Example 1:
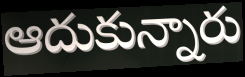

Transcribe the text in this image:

ఆదుకున్నారు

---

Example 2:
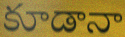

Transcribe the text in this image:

కూడానా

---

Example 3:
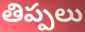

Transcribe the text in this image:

తిప్పలు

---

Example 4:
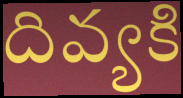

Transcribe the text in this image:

దివ్యకి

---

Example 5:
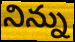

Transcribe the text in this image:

నిన్ను